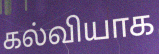
கல்வியாக